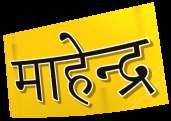
माहेन्द्र